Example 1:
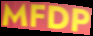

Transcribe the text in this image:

MFDP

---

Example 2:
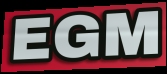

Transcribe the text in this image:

EGM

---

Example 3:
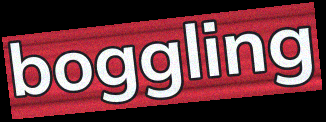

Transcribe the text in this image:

boggling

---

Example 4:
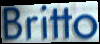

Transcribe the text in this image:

Britto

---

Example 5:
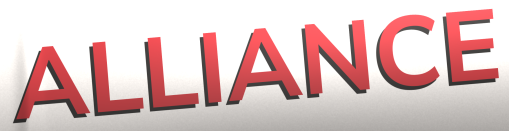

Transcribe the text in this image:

ALLIANCE